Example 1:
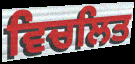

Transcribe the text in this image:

ਵਿਚਲਿਤ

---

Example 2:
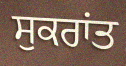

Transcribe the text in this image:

ਸੁਕਰਾਂਤ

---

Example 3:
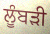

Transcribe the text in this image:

ਲੂੰਬੜੀ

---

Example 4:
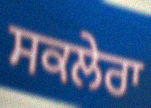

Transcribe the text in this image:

ਸਕਲੇਰਾ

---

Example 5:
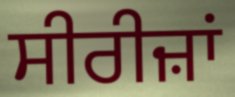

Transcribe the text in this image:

ਸੀਰੀਜ਼ਾਂ